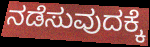
ನಡೆಸುವುದಕ್ಕೆ